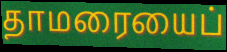
தாமரையைப்